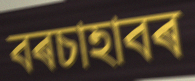
বৰচাহাবৰ